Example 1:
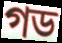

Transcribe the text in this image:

গড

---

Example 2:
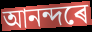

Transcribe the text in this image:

আনন্দৰে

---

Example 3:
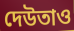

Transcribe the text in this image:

দেউতাও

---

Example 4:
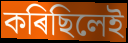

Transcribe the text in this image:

কৰিছিলেই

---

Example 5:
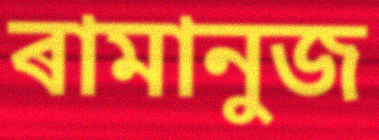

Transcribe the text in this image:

ৰামানুজ